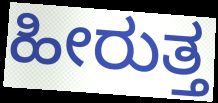
ಹೀರುತ್ತ